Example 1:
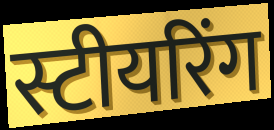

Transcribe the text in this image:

स्टीयरिंग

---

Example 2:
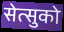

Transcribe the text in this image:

सेत्सुको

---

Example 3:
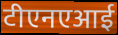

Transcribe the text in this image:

टीएनएआई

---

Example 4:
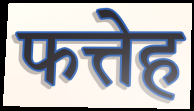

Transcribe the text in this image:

फत्तेह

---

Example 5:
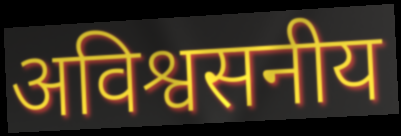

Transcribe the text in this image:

अविश्वसनीय